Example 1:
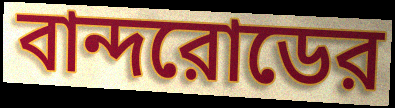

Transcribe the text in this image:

বান্দরোডের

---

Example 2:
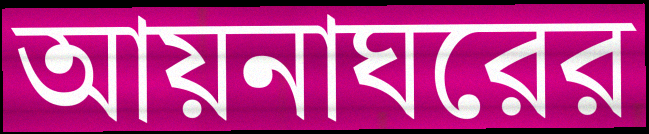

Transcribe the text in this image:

আয়নাঘরের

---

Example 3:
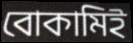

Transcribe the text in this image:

বোকামিই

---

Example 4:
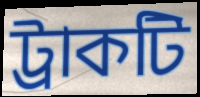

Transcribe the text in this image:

ট্রাকটি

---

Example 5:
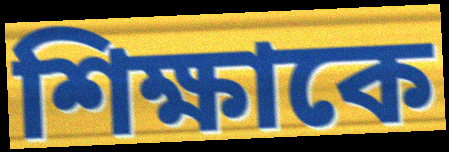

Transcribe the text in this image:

শিক্ষাকে